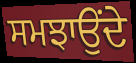
ਸਮਝਾਉਂਦੇ